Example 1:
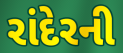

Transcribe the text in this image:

રાંદેરની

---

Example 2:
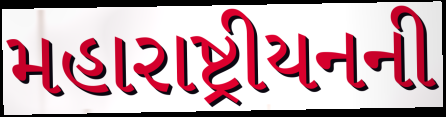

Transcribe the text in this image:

મહારાષ્ટ્રીયનની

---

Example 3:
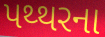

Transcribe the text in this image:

પથ્થરના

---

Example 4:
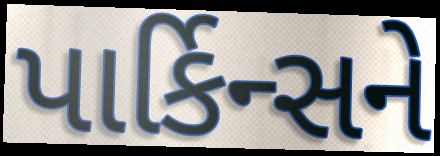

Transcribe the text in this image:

પાર્કિન્સને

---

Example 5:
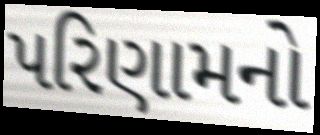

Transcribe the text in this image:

પરિણામનો